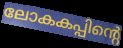
ലോകകപ്പിന്റെ